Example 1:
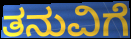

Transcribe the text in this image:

ತನುವಿಗೆ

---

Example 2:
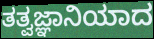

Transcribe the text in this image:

ತತ್ವಜ್ಞಾನಿಯಾದ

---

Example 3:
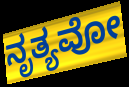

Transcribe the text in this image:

ನೃತ್ಯವೋ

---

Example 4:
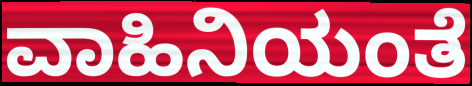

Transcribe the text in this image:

ವಾಹಿನಿಯಂತೆ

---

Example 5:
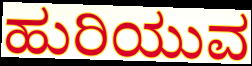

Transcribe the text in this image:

ಹುರಿಯುವ